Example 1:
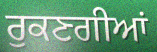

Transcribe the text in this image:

ਰੁਕਣਗੀਆਂ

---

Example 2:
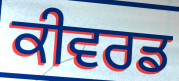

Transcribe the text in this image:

ਕੀਵਰਡ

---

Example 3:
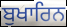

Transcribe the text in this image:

ਬੁਖਾਰਿਨ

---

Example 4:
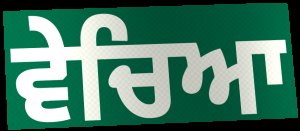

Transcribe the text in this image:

ਵੇਚਿਆ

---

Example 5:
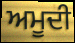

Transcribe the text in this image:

ਅਮੂਦੀ